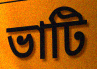
ভাটি